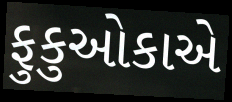
ફુકુઓકાએ